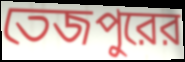
তেজপুরের